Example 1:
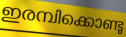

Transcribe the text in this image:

ഇരമ്പിക്കൊണ്ടു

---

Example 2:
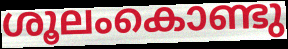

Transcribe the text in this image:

ശൂലംകൊണ്ടു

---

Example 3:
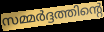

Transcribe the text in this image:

സമ്മർദ്ദത്തിന്റെ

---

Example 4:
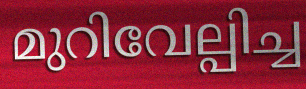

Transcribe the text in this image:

മുറിവേല്പിച്ച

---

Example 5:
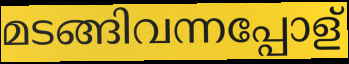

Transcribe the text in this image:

മടങ്ങിവന്നപ്പോള്